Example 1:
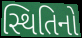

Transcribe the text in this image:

સ્થિતિનો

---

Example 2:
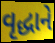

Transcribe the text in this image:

વૃદ્ધાને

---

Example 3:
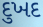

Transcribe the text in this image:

દુખદ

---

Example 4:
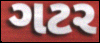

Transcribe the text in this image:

ગટર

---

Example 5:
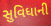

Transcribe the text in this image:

સુવિધાની